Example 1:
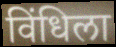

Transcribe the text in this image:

विंधिला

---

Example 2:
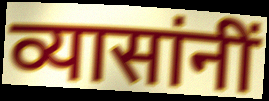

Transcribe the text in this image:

व्यासांनीं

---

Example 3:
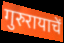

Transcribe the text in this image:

गुरुरायाचें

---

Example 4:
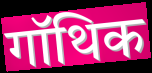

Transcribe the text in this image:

गॉथिक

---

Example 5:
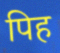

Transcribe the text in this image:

पिह